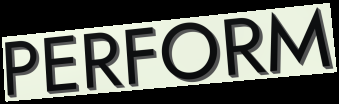
PERFORM